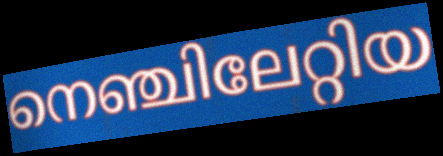
നെഞ്ചിലേറ്റിയ